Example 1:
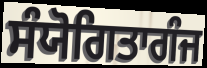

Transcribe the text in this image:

ਸੰਯੋਗਿਤਾਗੰਜ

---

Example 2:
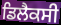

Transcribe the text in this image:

ਡਿਲੈਕਸੀ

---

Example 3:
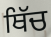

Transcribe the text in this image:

ਥਿੱਚ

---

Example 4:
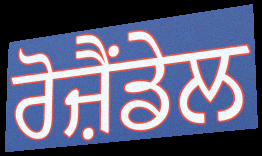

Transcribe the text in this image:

ਰੋਜ਼ੈਂਡੇਲ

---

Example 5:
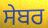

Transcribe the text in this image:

ਸੇਬਰ